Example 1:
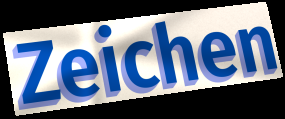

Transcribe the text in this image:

Zeichen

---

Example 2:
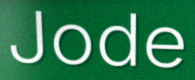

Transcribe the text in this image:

Jode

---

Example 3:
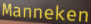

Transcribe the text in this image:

Manneken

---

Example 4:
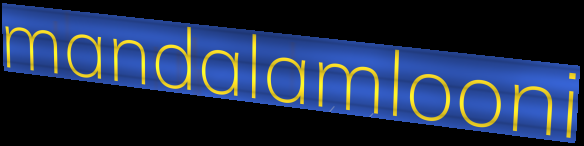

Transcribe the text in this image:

mandalamlooni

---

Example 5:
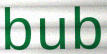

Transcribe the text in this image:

bub